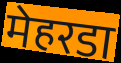
मेहरडा